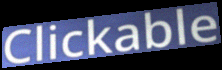
Clickable